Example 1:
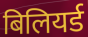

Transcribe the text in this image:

बिलियर्ड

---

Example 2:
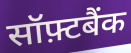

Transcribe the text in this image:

सॉफ़्टबैंक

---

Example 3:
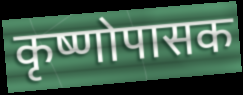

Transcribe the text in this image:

कृष्णोपासक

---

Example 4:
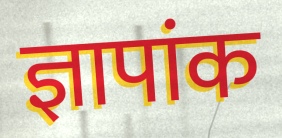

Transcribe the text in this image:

ज्ञापांक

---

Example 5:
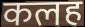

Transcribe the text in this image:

कलह